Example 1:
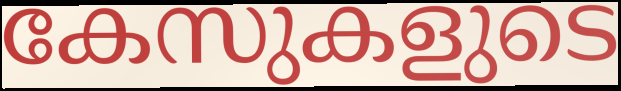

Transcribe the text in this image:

കേസുകളുടെ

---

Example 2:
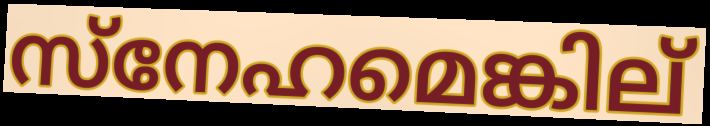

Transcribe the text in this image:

സ്നേഹമെങ്കില്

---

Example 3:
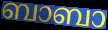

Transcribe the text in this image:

ബാബാ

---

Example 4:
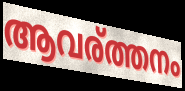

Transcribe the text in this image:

ആവര്ത്തനം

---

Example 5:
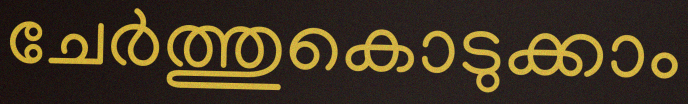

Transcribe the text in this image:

ചേർത്തുകൊടുക്കാം